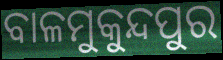
ବାଳମୁକୁନ୍ଦପୁର